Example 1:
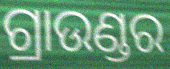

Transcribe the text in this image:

ଗ୍ରାଉଣ୍ଡର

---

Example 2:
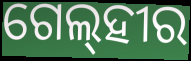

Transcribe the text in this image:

ଗେଲ୍‌ହୀର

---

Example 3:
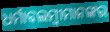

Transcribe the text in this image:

ଧର୍ମାବଲମ୍ବୀମାନଙ୍କର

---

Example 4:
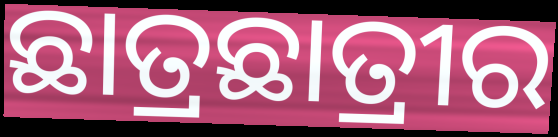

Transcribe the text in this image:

ଛାତ୍ରଛାତ୍ରୀର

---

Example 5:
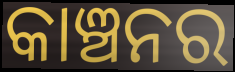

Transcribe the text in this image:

କାଞ୍ଚନର